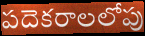
పదెకరాలలోపు